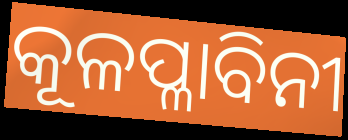
କୂଳପ୍ଳାବିନୀ